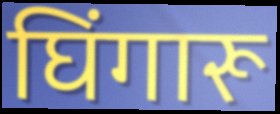
घिंगारू